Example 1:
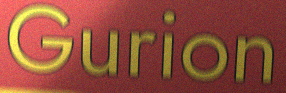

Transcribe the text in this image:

Gurion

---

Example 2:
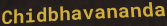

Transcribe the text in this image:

Chidbhavananda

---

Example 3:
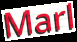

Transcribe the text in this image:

Marl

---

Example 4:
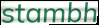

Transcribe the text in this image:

stambh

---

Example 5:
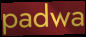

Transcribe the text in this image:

padwa